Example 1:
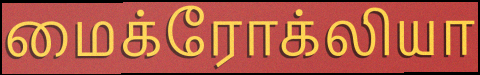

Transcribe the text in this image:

மைக்ரோக்லியா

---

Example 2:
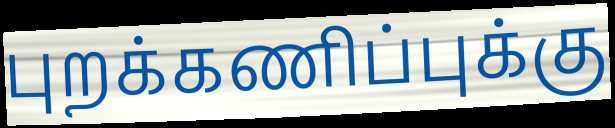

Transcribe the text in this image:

புறக்கணிப்புக்கு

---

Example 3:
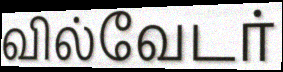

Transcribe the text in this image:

வில்வேடர்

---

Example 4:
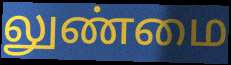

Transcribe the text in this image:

லுண்மை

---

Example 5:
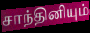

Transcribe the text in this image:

சாந்தினியும்